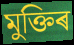
মুক্তিৰ